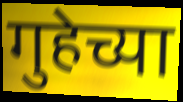
गुहेच्या